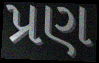
પ્રણ